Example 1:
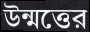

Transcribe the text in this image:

উন্মত্তের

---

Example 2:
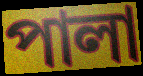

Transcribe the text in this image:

পালা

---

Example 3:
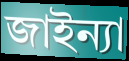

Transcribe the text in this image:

জাইন্যা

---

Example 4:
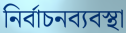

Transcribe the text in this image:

নির্বাচনব্যবস্থা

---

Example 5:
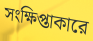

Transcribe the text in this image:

সংক্ষিপ্তাকারে